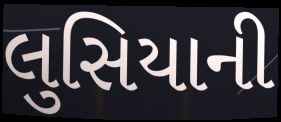
લુસિયાની